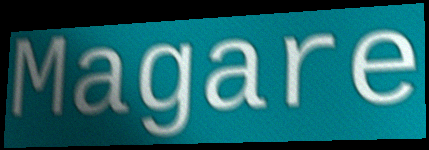
Magare